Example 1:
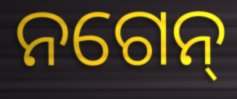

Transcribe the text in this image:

ନଗେନ୍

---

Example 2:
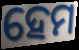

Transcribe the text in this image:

ହେମ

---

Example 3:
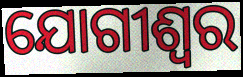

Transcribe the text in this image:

ଯୋଗୀଶ୍ୱର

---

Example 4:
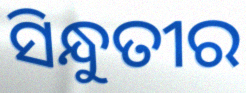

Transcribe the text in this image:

ସିନ୍ଧୁତୀର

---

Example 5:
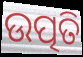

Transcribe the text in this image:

ଉତ୍ପତି